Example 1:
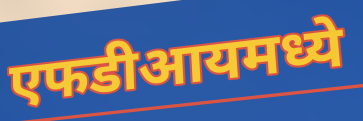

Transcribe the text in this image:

एफडीआयमध्ये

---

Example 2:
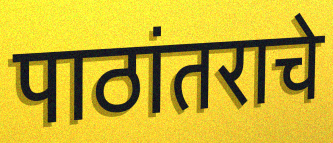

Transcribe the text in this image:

पाठांतराचे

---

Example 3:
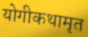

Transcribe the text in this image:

योगीकथामृत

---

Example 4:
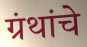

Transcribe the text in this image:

ग्रंथांचे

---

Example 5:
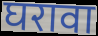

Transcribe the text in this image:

घरावा